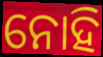
ନୋହି